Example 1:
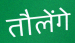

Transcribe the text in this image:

तौलेंगे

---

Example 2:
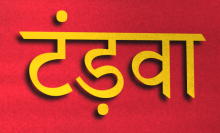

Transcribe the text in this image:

टंड़वा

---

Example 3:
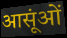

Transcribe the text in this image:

आसूंओं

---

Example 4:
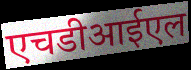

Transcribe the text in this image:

एचडीआईएल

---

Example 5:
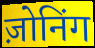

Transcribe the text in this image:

ज़ोनिंग